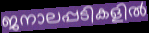
ജനാലപ്പടികളിൽ